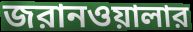
জরানওয়ালার